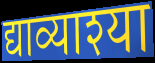
द्याव्याश्या